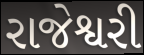
રાજેશ્વરી